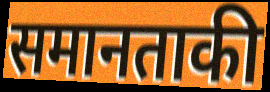
समानताकी